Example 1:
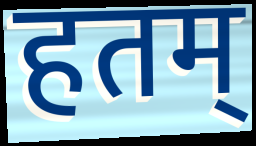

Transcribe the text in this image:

हतम्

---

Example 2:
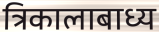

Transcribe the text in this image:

त्रिकालाबाध्य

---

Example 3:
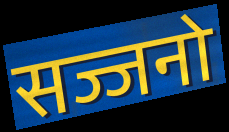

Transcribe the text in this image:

सज्जनो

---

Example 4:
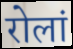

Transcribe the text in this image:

रोलां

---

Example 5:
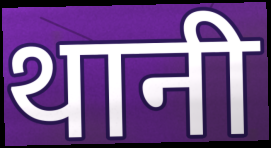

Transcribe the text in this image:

थानी